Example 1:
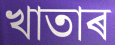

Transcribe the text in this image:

খাতাৰ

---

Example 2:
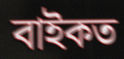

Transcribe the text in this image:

বাইকত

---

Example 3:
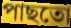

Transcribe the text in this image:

পাছতো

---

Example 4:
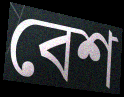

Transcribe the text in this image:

বেশ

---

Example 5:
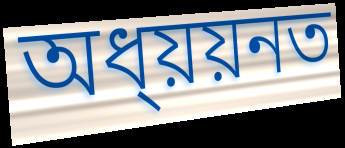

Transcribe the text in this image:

অধ্য়য়নত